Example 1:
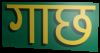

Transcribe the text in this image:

गाछ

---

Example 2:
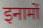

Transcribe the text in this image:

इनामों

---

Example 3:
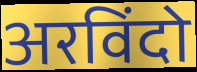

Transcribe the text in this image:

अरविंदो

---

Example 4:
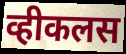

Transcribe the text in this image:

व्हीकलस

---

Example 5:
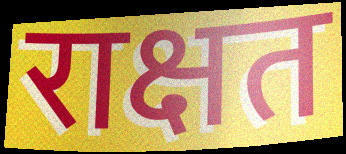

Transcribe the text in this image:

राक्षत